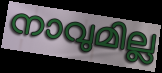
നാവുമില്ല